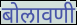
बोलावणी